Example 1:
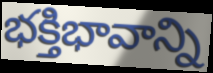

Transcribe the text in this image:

భక్తిభావాన్ని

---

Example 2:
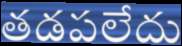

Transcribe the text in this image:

తడపలేదు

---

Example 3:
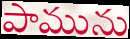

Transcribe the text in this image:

పామును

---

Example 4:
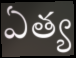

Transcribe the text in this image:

ఏత్య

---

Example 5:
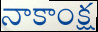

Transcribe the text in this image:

నాకాంక్ష